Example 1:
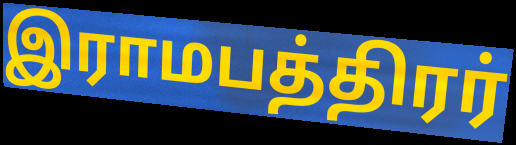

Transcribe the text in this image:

இராமபத்திரர்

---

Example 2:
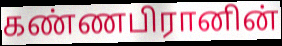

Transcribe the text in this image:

கண்ணபிரானின்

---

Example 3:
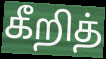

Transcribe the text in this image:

கீறித்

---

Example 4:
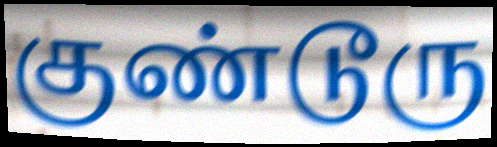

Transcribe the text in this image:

குண்டூரு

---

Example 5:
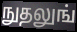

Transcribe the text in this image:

நுதலுங்